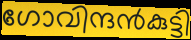
ഗോവിന്ദൻകുട്ടി